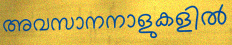
അവസാനനാളുകളിൽ